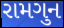
રામગુન